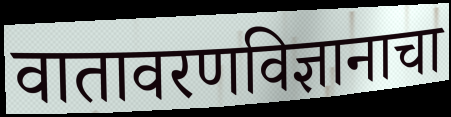
वातावरणविज्ञानाचा